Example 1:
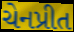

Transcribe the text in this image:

ચેનપ્રીત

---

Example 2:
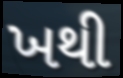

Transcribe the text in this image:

ખથી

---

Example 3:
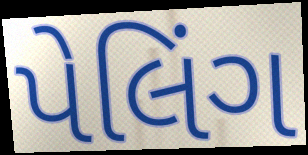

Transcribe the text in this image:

પેલિંગ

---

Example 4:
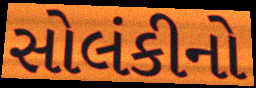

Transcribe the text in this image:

સોલંકીનો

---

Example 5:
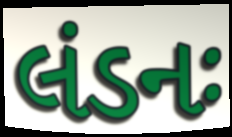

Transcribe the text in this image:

લંડનઃ